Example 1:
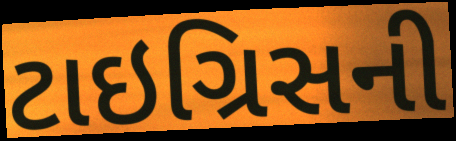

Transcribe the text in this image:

ટાઇગ્રિસની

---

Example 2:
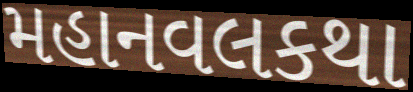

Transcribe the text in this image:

મહાનવલકથા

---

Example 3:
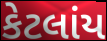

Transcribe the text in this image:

કેટલાંય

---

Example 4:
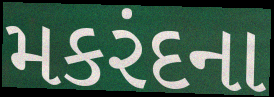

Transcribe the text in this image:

મકરંદના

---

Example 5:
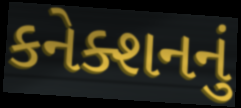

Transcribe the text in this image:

કનેક્શનનું